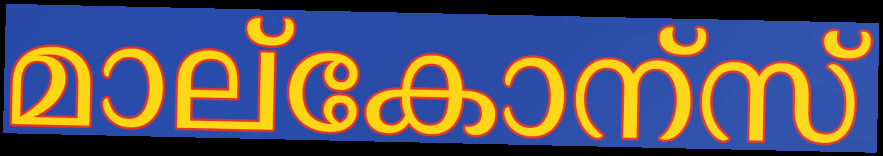
മാല്കോന്സ്